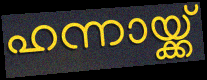
ഹന്നായ്ക്ക്